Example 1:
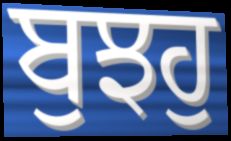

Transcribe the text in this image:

ਬੁਝਹੁ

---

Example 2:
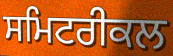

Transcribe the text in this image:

ਸਮਿਟਰੀਕਲ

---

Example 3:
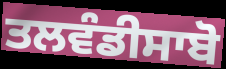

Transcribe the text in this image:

ਤਲਵੰਡੀਸਾਬੋ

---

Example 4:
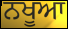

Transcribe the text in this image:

ਨਖੂਆ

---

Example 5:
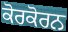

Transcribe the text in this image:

ਕੋਰਕੋਰਨ